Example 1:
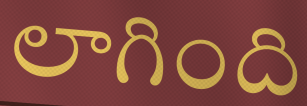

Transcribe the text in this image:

లాగింది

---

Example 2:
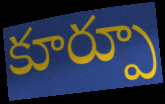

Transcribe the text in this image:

కూర్పూ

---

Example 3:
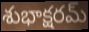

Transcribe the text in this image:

శుభాక్షరమ్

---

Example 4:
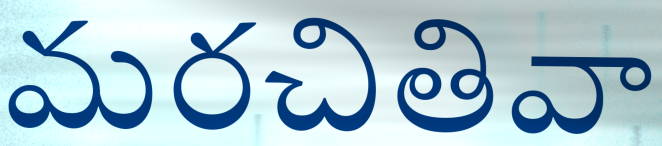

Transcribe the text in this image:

మరచితివా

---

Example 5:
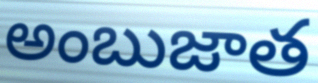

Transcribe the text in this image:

అంబుజాత